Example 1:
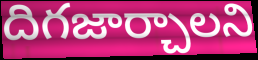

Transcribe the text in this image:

దిగజార్చాలని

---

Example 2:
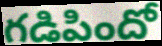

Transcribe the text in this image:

గడిపిందో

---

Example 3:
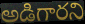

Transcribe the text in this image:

అడిగారని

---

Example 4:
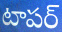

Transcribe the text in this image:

టాపర్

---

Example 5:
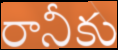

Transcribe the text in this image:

రానీకు